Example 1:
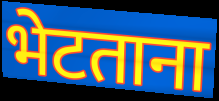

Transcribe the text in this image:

भेटताना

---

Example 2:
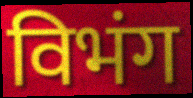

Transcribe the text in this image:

विभंग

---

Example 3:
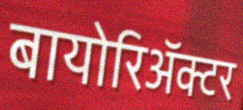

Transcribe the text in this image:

बायोरिॲक्टर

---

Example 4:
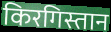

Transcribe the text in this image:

किरगिस्तान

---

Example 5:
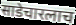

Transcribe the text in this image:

साडेचारलाच